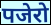
पजेरो